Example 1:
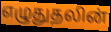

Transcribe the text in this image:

எழுதுதலின்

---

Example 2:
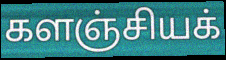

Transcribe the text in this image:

களஞ்சியக்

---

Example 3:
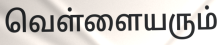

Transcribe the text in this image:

வெள்ளையரும்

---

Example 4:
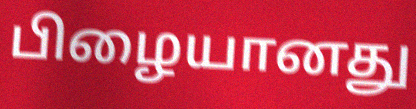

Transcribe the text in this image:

பிழையானது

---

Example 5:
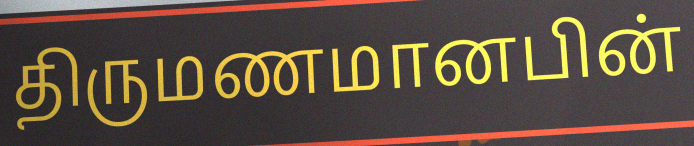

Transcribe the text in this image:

திருமணமானபின்